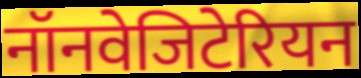
नॉनवेजिटेरियन